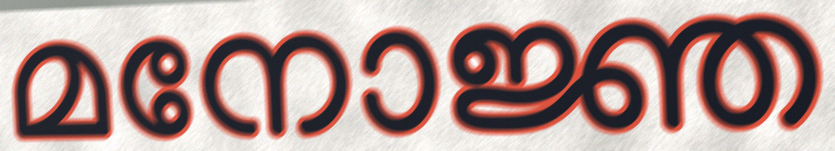
മനോജ്ഞ